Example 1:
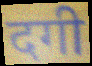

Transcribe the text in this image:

दगी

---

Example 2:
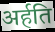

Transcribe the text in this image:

अर्हति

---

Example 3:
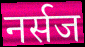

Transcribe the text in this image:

नर्सज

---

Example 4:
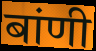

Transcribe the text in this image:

बांणी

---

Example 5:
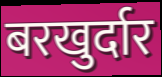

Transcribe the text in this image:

बरखुर्दार